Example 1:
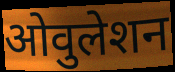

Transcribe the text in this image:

ओवुलेशन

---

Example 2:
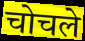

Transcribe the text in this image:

चोचले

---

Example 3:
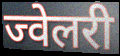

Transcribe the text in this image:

ज्वेलरी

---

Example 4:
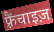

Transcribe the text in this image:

फ़्रैंचाइज़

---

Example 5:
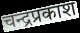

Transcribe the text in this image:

चन्द्रप्रकाश